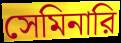
সেমিনারি